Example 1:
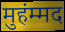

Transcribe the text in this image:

मुहंम्मद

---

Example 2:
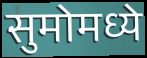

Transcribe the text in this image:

सुमोमध्ये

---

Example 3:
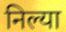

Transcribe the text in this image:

निल्या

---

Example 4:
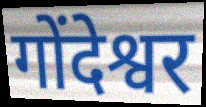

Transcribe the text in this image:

गोंदेश्वर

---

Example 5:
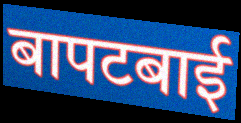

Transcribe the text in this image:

बापटबाई